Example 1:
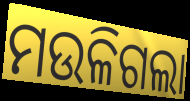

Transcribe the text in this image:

ମଉଳିଗଲା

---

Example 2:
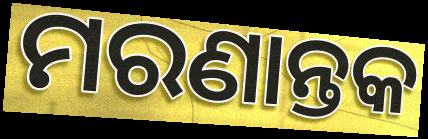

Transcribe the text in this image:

ମରଣାନ୍ତକ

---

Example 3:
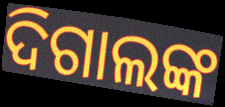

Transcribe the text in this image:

ଦିଗାଲଙ୍କ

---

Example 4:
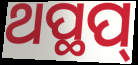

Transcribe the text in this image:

ଥପ୍ଥପ୍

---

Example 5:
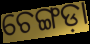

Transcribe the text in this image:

ଚେଙ୍ଗଡ଼ା